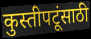
कुस्तीपटूंसाठी